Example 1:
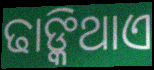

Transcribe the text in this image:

ଢାଙ୍କିଥାଏ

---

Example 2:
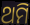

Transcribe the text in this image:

ଥମି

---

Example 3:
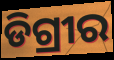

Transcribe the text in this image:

ଡିଗ୍ରୀର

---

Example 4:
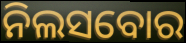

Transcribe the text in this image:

ନିଲସବୋର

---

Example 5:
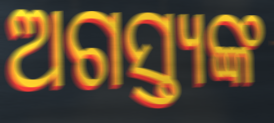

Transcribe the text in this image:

ଅଗସ୍ତ୍ୟଙ୍କ